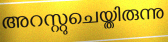
അറസ്റ്റുചെയ്തിരുന്നു